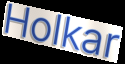
Holkar